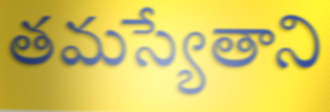
తమస్యేతాని